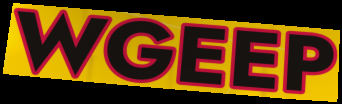
WGEEP